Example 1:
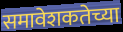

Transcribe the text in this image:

समावेशकतेच्या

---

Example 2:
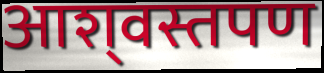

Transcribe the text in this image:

आश्वस्तपण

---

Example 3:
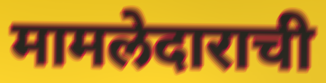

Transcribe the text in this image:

मामलेदाराची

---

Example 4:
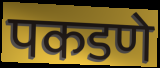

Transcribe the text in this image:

पकडणे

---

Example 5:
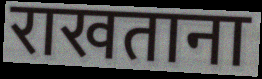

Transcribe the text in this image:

राखताना